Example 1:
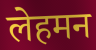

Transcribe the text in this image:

लेहमन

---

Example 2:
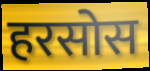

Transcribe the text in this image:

हरसोस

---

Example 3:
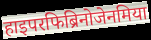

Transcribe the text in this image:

हाइपरफिब्रिनोजेनमिया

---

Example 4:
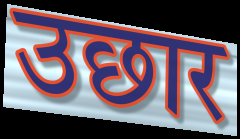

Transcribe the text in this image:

उछार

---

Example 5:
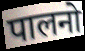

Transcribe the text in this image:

पालनो